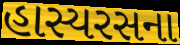
હાસ્યરસના